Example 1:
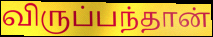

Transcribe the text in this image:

விருப்பந்தான்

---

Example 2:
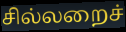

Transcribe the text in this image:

சில்லறைச்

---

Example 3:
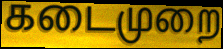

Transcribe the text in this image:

கடைமுறை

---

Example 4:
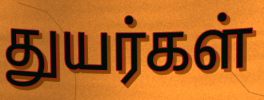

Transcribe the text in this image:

துயர்கள்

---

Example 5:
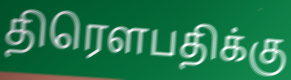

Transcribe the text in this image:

திரௌபதிக்கு